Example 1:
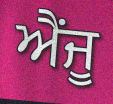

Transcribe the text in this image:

ਐਂਜੂ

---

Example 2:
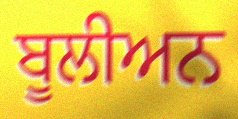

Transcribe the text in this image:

ਬੂਲੀਅਨ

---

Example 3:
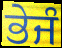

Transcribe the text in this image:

ਭੇਜੰ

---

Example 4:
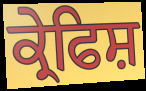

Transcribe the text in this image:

ਕ੍ਰੇਫਿਸ਼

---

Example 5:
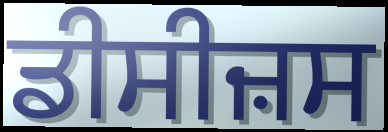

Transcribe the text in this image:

ਡੀਸੀਜ਼ਸ